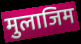
मुलाजिम